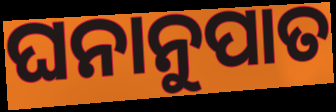
ଘନାନୁପାତ